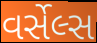
વર્સેલ્સ